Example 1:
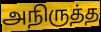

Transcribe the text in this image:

அநிருத்த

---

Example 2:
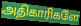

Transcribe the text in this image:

அதிகாரிகளே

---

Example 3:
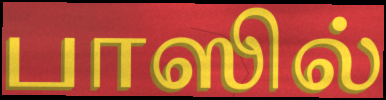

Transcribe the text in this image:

பாஸில்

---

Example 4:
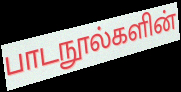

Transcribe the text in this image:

பாடநூல்களின்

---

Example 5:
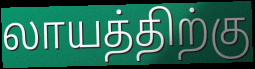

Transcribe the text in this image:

லாயத்திற்கு